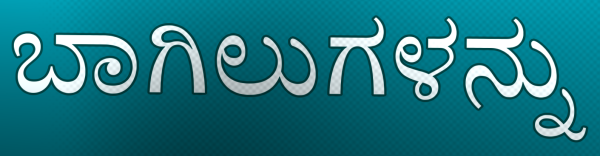
ಬಾಗಿಲುಗಳನ್ನು